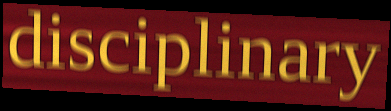
disciplinary